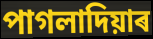
পাগলাদিয়াৰ